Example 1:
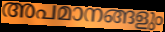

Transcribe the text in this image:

അപമാനങ്ങളും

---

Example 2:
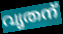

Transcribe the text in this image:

വൃതന്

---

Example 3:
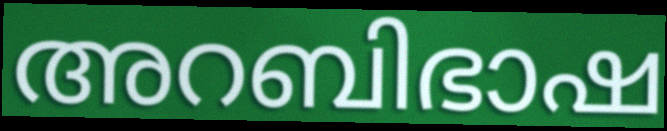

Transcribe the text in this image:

അറബിഭാഷ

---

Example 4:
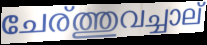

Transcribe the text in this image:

ചേര്ത്തുവച്ചാല്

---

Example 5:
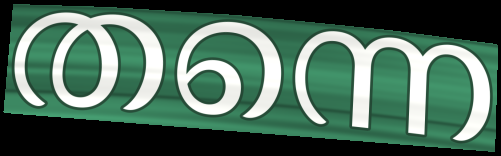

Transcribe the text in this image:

തന്നെ